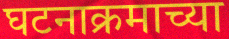
घटनाक्रमाच्या